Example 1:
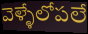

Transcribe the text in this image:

వెళ్ళేలోపలే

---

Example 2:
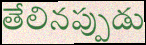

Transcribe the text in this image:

తేలినప్పుడు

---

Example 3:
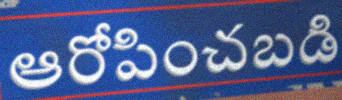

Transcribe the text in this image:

ఆరోపించబడి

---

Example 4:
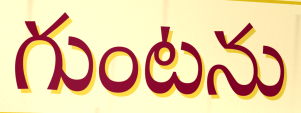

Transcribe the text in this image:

గుంటను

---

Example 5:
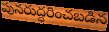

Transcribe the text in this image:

పునరుద్ధరించబడిన